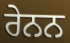
ਰੇਨਨ